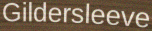
Gildersleeve